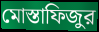
মোস্তাফিজুর